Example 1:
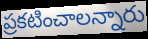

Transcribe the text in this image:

ప్రకటించాలన్నారు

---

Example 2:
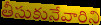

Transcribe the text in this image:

తీసుకునేవారిని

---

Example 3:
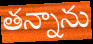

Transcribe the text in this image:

తన్నాను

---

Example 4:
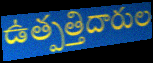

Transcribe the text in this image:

ఉత్పత్తిదారుల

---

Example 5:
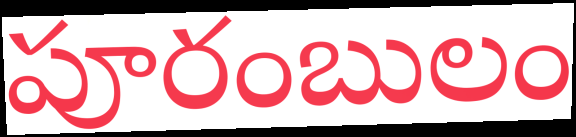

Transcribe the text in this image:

పూరంబులం